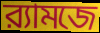
র‍্যামজে